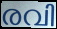
രവി